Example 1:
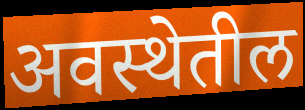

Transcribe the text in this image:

अवस्थेतील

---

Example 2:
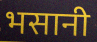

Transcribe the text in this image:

भसानी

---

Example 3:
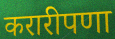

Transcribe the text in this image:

करारीपणा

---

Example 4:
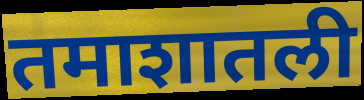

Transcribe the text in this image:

तमाशातली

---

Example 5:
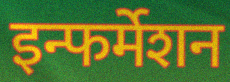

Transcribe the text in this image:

इन्फर्मेशन